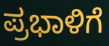
ಪ್ರಭಾಳಿಗೆ